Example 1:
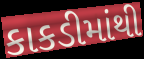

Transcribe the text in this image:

કાકડીમાંથી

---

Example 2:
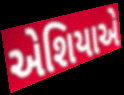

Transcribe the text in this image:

એશિયાએ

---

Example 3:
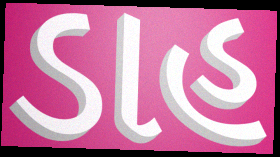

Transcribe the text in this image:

ડાહ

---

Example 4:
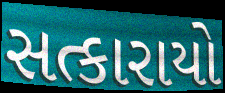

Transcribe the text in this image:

સત્કારાયો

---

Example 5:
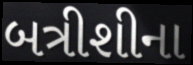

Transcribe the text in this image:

બત્રીશીના